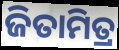
ଜିତାମିତ୍ର